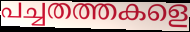
പച്ചതത്തകളെ